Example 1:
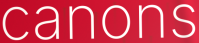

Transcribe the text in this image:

canons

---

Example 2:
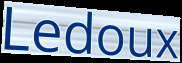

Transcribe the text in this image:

Ledoux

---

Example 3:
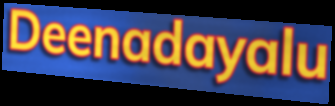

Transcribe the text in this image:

Deenadayalu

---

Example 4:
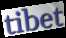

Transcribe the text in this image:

tibet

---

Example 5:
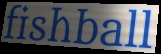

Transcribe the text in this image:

fishball